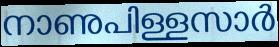
നാണുപിള്ളസാർ